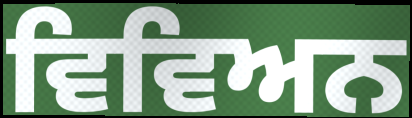
ਵਿਵਿਅਨ